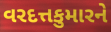
વરદત્તકુમારને